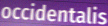
occidentalis